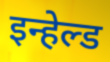
इन्हेल्ड